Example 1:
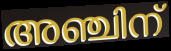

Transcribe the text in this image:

അഞ്ചിന്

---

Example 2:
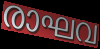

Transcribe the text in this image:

രാഘവ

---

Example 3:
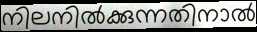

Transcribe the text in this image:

നിലനിൽക്കുന്നതിനാൽ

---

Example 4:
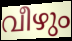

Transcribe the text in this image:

വീഴും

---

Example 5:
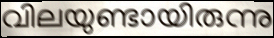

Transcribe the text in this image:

വിലയുണ്ടായിരുന്നു